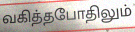
வகித்தபோதிலும்